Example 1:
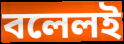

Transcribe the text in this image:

বলেলই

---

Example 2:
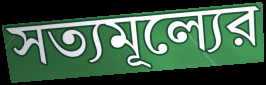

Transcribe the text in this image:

সত্যমূল্যের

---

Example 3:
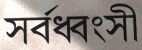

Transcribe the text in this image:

সর্বধ্বংসী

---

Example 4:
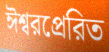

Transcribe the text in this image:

ঈশ্বরপ্রেরিত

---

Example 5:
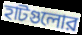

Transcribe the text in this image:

হাটগুলোর